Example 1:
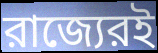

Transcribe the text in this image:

রাজ্যেরই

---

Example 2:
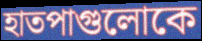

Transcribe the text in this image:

হাতপাগুলোকে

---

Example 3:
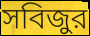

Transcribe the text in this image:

সবিজুর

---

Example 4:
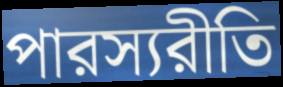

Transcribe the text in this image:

পারস্যরীতি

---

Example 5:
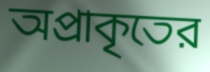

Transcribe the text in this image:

অপ্রাকৃতের